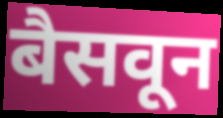
बैसवून